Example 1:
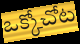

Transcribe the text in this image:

ఒక్కోచోట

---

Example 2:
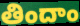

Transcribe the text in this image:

తిందాం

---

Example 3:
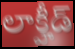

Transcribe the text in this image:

లాక్హీడ్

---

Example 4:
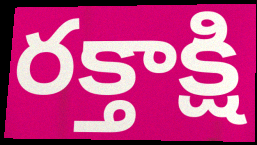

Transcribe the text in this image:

రక్తాక్షి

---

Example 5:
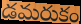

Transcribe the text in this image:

డమరుకం